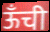
ऊँची